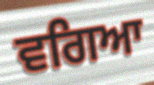
ਵਗਿਆ